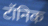
टॉनिक